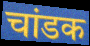
चांडक